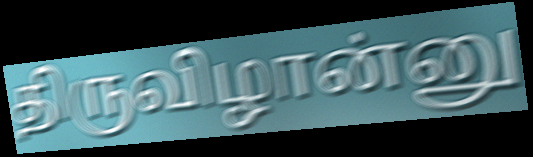
திருவிழான்னு